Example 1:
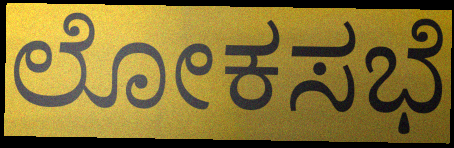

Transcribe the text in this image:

ಲೋಕಸಭೆ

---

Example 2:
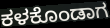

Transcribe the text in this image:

ಕಳಕೊಂಡಾಗ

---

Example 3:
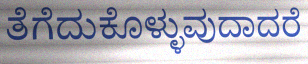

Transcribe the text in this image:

ತೆಗೆದುಕೊಳ್ಳುವುದಾದರೆ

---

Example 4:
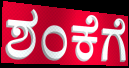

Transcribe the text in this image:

ಶಂಕೆಗೆ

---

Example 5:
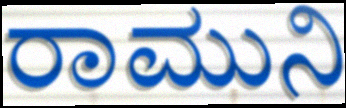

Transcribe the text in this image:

ರಾಮುನಿ